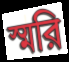
স্মরি